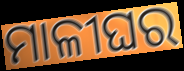
ମାଳୀଘର